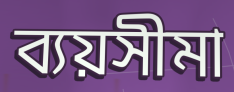
ব্যয়সীমা